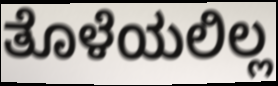
ತೊಳೆಯಲಿಲ್ಲ